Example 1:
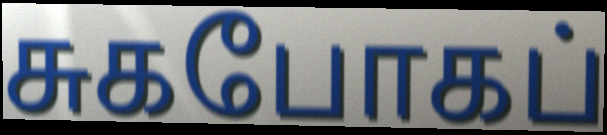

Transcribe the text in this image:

சுகபோகப்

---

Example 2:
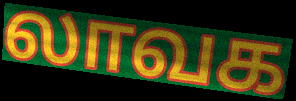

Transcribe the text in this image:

லாவக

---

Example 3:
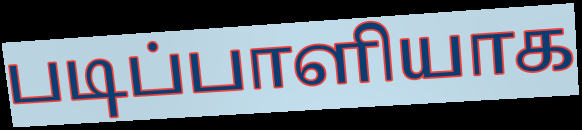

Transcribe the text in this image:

படிப்பாளியாக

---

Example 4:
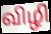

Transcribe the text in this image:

விழி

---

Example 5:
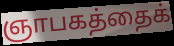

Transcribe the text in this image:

ஞாபகத்தைக்